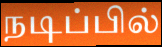
நடிப்பில்